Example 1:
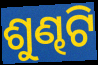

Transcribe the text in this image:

ଶୁଣ୍ଢଟି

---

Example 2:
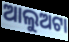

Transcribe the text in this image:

ଆଲୁଅଟା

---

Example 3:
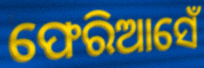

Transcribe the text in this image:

ଫେରିଆସେଁ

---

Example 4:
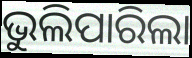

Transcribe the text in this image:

ଭୁଲିପାରିଲା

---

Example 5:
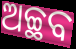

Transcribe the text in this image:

ଅଚ୍ଛବ